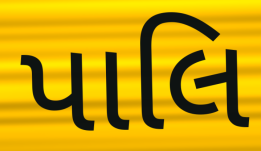
પાલિ